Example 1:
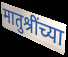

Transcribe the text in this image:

मातुश्रींच्या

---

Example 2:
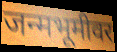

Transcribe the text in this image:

जन्मभूमीवर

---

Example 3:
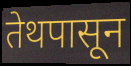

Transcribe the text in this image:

तेथपासून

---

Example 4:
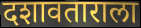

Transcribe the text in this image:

दशावताराला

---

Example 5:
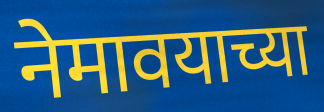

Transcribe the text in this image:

नेमावयाच्या